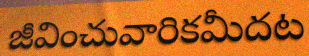
జీవించువారికమీదట